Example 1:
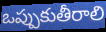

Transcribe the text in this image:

ఒప్పుకుతీరాలి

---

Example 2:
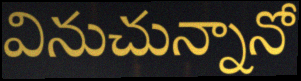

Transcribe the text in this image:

వినుచున్నానో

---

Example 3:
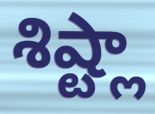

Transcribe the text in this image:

శిష్ట్లా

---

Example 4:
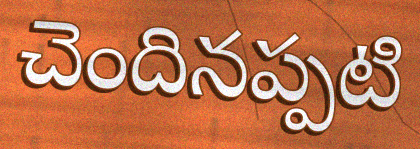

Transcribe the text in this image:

చెందినప్పటి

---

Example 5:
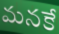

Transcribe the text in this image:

మనకే